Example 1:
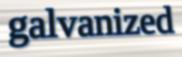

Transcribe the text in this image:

galvanized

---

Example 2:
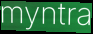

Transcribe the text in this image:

myntra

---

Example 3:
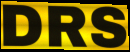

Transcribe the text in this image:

DRS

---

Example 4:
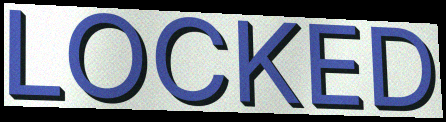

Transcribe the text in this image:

LOCKED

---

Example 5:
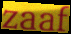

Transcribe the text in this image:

zaaf